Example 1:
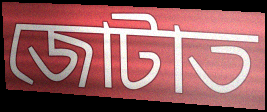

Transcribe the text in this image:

জোটাত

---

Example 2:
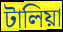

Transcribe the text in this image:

টালিয়া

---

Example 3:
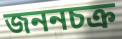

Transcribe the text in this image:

জননচক্র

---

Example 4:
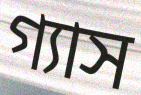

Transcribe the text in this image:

গ্যাস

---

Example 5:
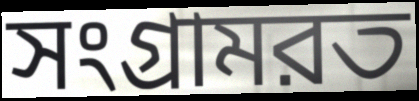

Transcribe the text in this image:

সংগ্রামরত